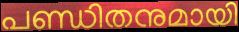
പണ്ഡിതനുമായി